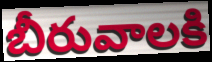
బీరువాలకి